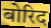
बोरिद